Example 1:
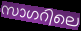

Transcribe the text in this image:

സാഗറിലെ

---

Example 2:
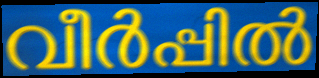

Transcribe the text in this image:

വീർപ്പിൽ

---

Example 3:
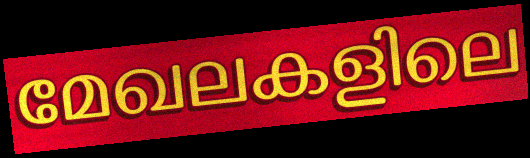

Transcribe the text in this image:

മേഖലകളിലെ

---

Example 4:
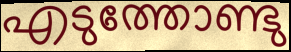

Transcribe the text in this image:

എടുത്തോണ്ടു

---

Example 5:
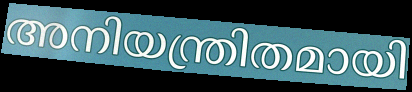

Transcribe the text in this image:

അനിയന്ത്രിതമായി